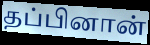
தப்பினான்